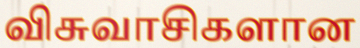
விசுவாசிகளான